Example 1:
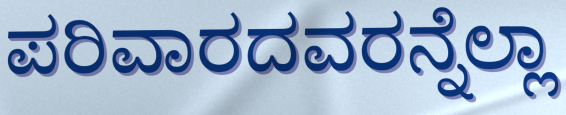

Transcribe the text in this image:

ಪರಿವಾರದವರನ್ನೆಲ್ಲಾ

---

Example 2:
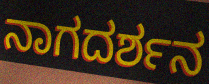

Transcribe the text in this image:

ನಾಗದರ್ಶನ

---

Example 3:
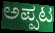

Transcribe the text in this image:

ಅಪ್ಪಟ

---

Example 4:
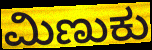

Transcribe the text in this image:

ಮಿಣುಕು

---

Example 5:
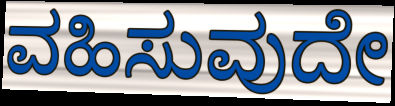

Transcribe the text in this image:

ವಹಿಸುವುದೇ